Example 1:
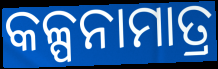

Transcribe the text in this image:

କଳ୍ପନାମାତ୍ର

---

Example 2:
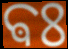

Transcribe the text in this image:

ଵଃ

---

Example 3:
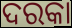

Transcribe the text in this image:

ଦରକା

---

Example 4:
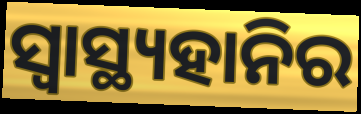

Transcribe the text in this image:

ସ୍ଵାସ୍ଥ୍ୟହାନିର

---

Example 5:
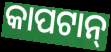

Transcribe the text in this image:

କାପଟାନ୍